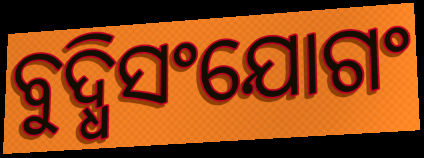
ବୁଦ୍ଧିସଂଯୋଗଂ